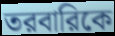
তরবারিকে